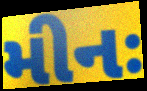
મીનઃ